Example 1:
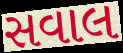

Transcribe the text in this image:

સવાલ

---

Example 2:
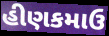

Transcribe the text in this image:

હીણકમાઉ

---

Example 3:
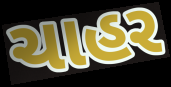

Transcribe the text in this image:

ચાહર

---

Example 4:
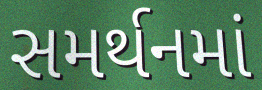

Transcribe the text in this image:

સમર્થનમાં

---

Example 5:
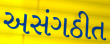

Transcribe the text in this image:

અસંગઠીત